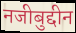
नजीबुद्दीन